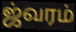
ஜ்வரம்